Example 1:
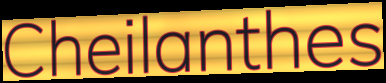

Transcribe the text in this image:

Cheilanthes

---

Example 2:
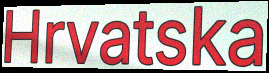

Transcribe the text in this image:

Hrvatska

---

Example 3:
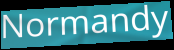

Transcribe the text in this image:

Normandy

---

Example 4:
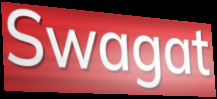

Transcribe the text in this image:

Swagat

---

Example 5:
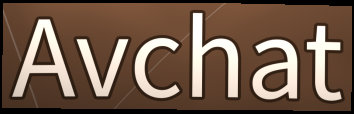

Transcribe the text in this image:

Avchat